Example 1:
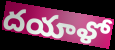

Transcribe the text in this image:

దయాళో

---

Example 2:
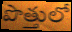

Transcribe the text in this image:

పొత్తులో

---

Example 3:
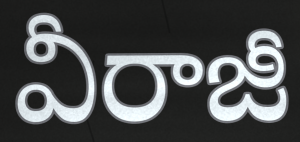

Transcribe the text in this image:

వీరాజీ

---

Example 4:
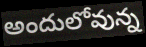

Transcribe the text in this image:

అందులోవున్న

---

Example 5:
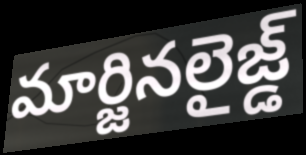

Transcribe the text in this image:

మార్జినలైజ్డ్